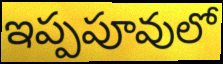
ఇప్పపూవులో